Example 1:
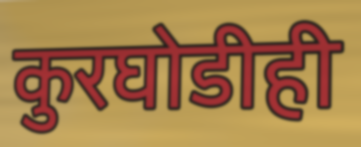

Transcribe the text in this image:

कुरघोडीही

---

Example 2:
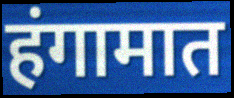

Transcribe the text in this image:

हंगामात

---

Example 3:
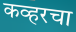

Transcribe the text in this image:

कव्हरचा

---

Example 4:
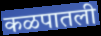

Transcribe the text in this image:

कळपातली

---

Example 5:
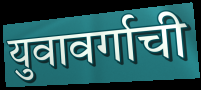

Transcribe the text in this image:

युवावर्गाची